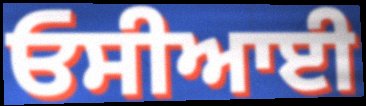
ਓਸੀਆਈ